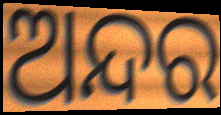
ଅନ୍ଦର